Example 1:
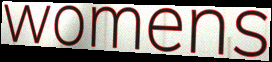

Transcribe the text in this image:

womens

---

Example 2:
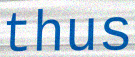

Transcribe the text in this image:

thus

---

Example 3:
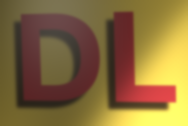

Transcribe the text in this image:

DL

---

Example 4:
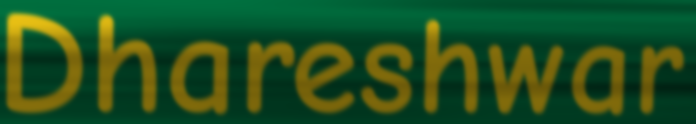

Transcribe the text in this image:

Dhareshwar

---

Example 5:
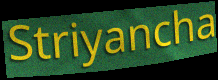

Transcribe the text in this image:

Striyancha